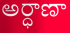
అర్ధాణా